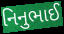
નિનુભાઈ